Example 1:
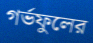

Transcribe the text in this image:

গর্ভফুলের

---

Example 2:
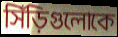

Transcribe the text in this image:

সিঁড়িগুলোকে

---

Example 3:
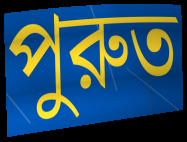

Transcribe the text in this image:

পুরুত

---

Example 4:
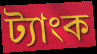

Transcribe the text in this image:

ট্যাংক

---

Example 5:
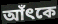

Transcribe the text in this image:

আঁৎকে